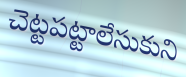
చెట్టపట్టాలేసుకుని